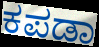
ಕಪಡಾ